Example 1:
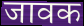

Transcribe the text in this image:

जावक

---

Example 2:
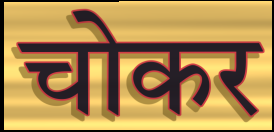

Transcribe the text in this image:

चोकर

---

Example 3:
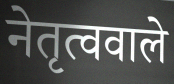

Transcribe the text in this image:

नेतृत्ववाले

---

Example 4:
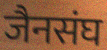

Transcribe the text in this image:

जैनसंघ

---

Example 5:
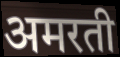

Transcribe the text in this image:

अमरती